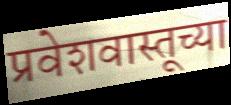
प्रवेशवास्तूच्या